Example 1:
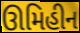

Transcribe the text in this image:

ઊમિહીન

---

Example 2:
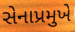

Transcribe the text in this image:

સેનાપ્રમુખે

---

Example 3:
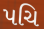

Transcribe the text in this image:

પચિ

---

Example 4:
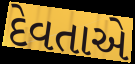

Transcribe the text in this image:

દેવતાએ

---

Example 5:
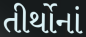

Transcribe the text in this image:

તીર્થોનાં